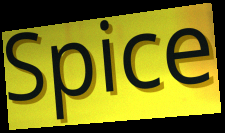
Spice